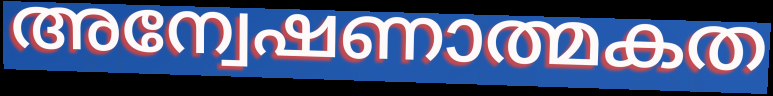
അന്വേഷണാത്മകത